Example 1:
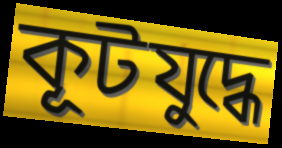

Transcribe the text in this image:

কূটযুদ্ধে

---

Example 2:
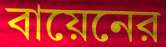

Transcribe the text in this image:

বায়েনের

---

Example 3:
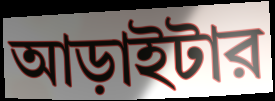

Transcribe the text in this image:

আড়াইটার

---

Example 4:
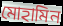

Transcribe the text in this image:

মোহামিন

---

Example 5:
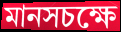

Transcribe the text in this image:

মানসচক্ষে